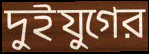
দুইযুগের